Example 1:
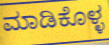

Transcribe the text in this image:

ಮಾಡಿಕೊಳ್ಳ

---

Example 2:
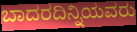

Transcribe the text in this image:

ಬಾದರದಿನ್ನಿಯವರು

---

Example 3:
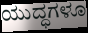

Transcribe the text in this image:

ಯುದ್ಧಗಳೂ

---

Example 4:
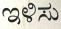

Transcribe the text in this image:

ಇಳಿಸು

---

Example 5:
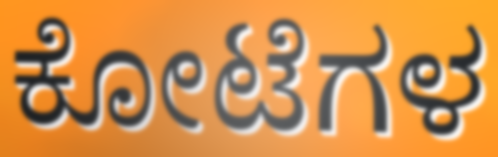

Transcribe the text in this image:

ಕೋಟೆಗಳ